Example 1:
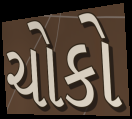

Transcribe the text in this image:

ચોકો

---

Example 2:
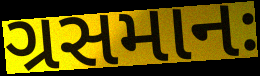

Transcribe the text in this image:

ગ્રસમાનઃ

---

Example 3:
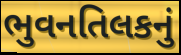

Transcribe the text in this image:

ભુવનતિલકનું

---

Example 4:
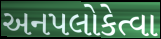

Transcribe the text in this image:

અનપલોકેત્વા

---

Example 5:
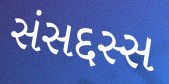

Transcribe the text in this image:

સંસદ્દસ્સ